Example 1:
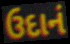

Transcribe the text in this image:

ઉદાનં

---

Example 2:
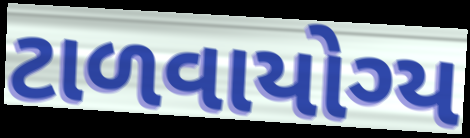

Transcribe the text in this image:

ટાળવાયોગ્ય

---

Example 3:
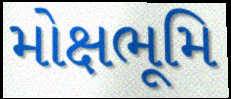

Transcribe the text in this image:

મોક્ષભૂમિ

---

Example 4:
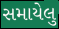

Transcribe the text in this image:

સમાયેલુ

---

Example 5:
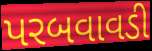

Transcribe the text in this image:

પરબવાવડી